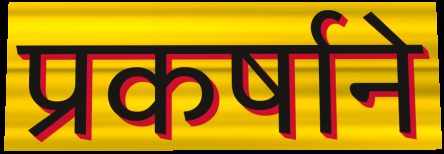
प्रकर्षाने